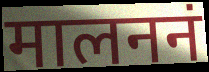
मालननं